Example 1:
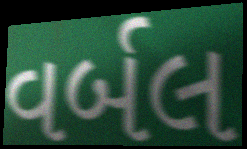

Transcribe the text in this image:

વર્બલ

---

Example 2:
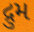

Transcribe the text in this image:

દ્રુમ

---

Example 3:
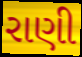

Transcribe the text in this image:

રાણી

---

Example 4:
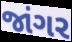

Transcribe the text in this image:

જાંગર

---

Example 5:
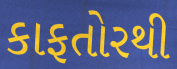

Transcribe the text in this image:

કાફતોરથી